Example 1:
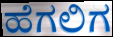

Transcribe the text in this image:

ಹೆಗಲಿಗ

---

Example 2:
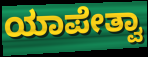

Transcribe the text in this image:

ಯಾಪೇತ್ವಾ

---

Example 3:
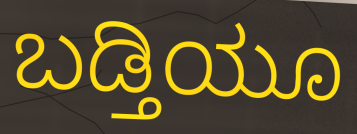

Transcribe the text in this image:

ಬಡ್ತಿಯೂ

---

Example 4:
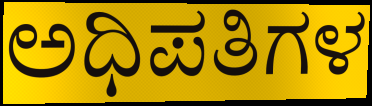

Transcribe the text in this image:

ಅಧಿಪತಿಗಳ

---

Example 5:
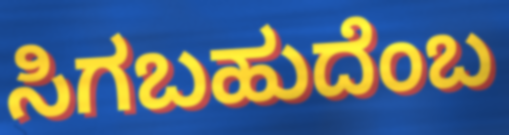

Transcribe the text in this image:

ಸಿಗಬಹುದೆಂಬ